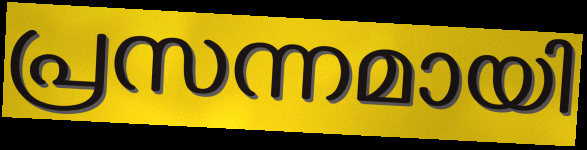
പ്രസന്നമായി